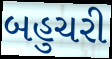
બહુચરી